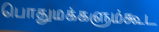
பொதுமக்களும்கூட